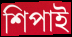
শিপাই